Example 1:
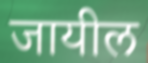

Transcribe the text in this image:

जायील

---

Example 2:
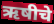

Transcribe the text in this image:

ऋषीचे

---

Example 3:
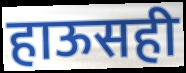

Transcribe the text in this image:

हाऊसही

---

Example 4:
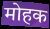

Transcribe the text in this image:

मोहक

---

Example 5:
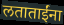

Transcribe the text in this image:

लताताईंना